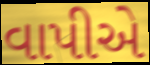
વાપીએ